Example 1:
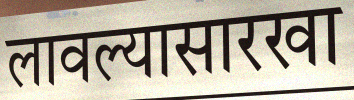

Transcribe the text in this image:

लावल्यासारखा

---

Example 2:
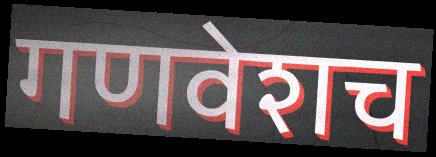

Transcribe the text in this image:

गणवेशच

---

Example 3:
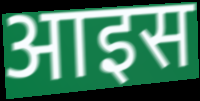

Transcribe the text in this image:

आइस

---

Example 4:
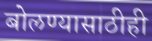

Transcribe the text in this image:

बोलण्यासाठीही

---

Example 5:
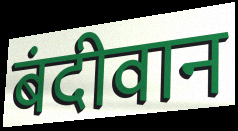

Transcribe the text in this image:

बंदीवान